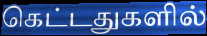
கெட்டதுகளில்